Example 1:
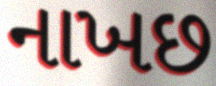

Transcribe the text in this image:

નાખછ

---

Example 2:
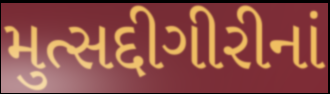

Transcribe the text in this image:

મુત્સદ્દીગીરીનાં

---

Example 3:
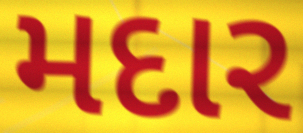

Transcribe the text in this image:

મદાર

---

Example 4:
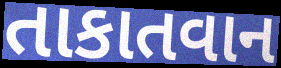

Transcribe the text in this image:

તાકાતવાન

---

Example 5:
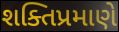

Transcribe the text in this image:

શક્તિપ્રમાણે